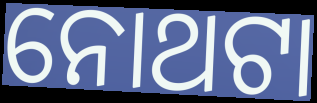
ନୋଥଟା